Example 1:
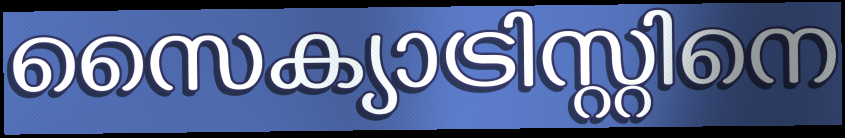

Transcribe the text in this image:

സൈക്യാട്രിസ്റ്റിനെ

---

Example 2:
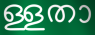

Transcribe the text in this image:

ള്ളതാ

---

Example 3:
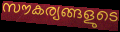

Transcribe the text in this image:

സൗകര്യങ്ങളുടെ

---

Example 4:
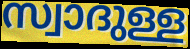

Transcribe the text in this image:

സ്വാദുള്ള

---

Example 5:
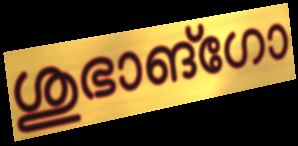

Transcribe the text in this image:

ശുഭാങ്ഗോ